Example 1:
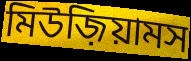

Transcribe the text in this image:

মিউজ়িয়ামস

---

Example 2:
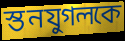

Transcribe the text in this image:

স্তনযুগলকে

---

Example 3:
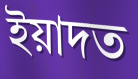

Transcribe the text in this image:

ইয়াদত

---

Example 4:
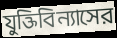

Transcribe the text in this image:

যুক্তিবিন্যাসের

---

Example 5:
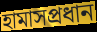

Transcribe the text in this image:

হামাসপ্রধান